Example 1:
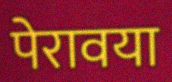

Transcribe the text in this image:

पेरावया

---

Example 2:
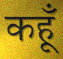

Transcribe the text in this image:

कहूँ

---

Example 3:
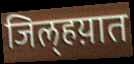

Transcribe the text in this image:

जिल्हय़ात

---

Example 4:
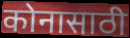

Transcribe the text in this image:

कोनासाठी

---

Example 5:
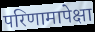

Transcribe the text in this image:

परिणामापेक्षा